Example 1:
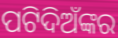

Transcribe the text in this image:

ପଟିଦିଅଁଙ୍କର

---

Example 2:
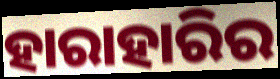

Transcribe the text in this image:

ହାରାହାରିର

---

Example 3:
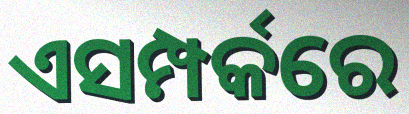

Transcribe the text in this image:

ଏସମ୍ପର୍କରେ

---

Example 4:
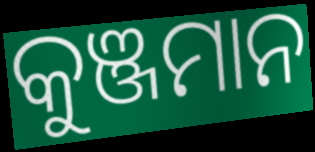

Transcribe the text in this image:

କୁଞ୍ଜମାନ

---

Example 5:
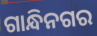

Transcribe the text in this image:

ଗାନ୍ଧିନଗର